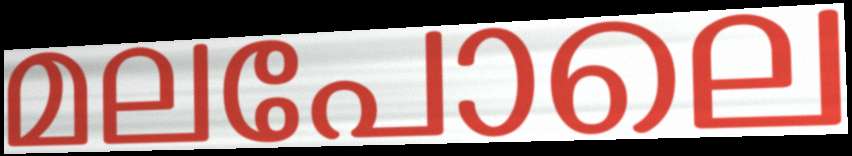
മലപോലെ